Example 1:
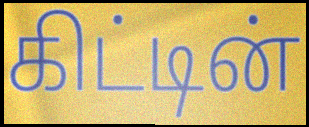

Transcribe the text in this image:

கிட்டின்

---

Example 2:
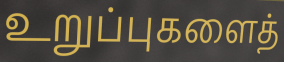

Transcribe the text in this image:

உறுப்புகளைத்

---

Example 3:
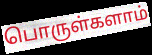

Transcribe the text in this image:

பொருள்களாம்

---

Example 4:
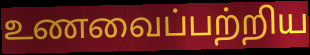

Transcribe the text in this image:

உணவைப்பற்றிய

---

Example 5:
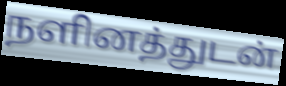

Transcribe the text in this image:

நளினத்துடன்